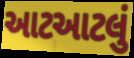
આટઆટલું